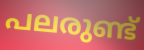
പലരുണ്ട്